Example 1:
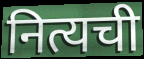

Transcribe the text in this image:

नित्यची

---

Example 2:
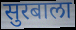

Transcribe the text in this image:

सुरबाला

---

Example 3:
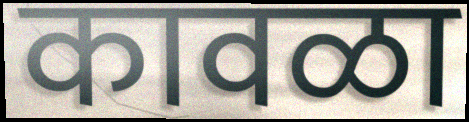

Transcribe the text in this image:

कावळा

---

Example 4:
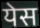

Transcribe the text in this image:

येस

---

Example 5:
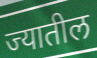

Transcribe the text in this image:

ज्यातील